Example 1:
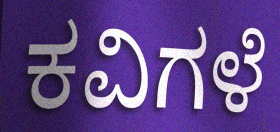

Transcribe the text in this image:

ಕವಿಗಳೆ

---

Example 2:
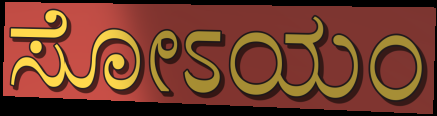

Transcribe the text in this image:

ಸೋಽಯಂ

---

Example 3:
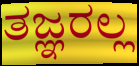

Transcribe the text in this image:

ತಜ್ಞರಲ್ಲ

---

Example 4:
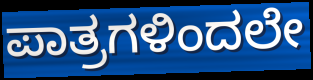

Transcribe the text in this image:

ಪಾತ್ರಗಳಿಂದಲೇ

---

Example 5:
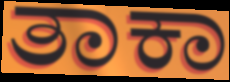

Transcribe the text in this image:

ತಾಕಾ